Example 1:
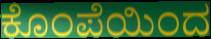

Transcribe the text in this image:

ಕೊಂಪೆಯಿಂದ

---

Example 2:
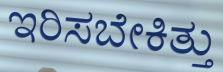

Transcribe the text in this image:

ಇರಿಸಬೇಕಿತ್ತು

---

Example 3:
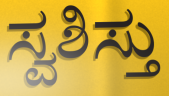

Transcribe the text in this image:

ಸ್ವಶಿಸ್ತು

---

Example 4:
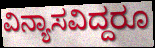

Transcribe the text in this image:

ವಿನ್ಯಾಸವಿದ್ದರೂ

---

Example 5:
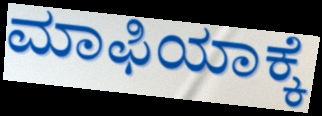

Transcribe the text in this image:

ಮಾಫಿಯಾಕ್ಕೆ